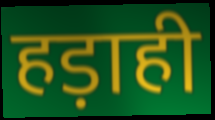
हड़ाही